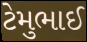
ટેમુભાઈ